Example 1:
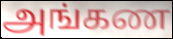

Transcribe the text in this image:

அங்கண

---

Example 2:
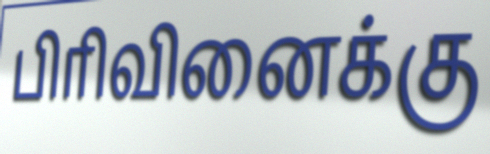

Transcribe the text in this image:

பிரிவினைக்கு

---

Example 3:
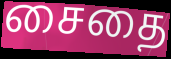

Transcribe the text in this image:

சைதை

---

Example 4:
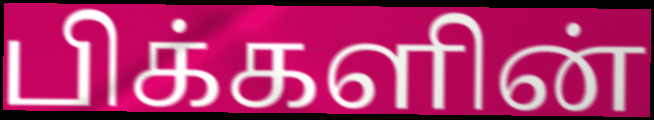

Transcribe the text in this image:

பிக்களின்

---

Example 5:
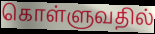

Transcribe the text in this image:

கொள்ளுவதில்